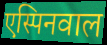
एस्पिनवाल